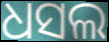
ଧସଲ